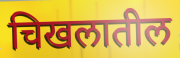
चिखलातील